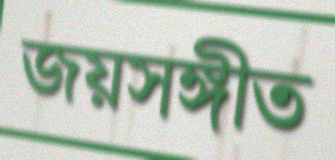
জয়সঙ্গীত